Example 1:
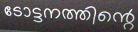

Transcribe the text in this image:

ടോട്ടനത്തിന്റെ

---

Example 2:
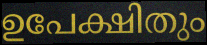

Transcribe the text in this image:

ഉപേക്ഷിതും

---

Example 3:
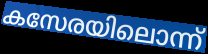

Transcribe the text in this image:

കസേരയിലൊന്ന്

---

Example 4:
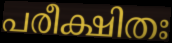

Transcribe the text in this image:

പരീക്ഷിതഃ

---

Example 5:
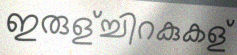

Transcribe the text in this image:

ഇരുള്ച്ചിറകുകള്